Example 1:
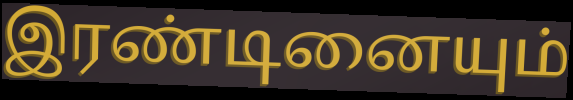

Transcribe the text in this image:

இரண்டினையும்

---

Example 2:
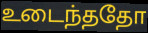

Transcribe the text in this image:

உடைந்ததோ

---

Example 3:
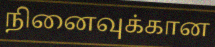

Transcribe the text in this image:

நினைவுக்கான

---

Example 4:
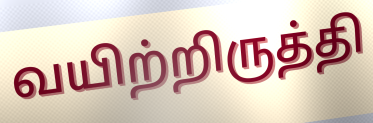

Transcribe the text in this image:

வயிற்றிருத்தி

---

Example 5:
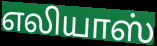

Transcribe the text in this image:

எலியாஸ்